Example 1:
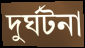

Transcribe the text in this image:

দুৰ্ঘটনা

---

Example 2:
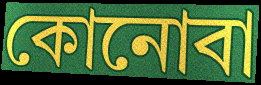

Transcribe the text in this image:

কোনোবা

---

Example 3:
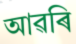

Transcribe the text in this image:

আৱৰি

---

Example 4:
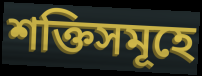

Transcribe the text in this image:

শক্তিসমূহে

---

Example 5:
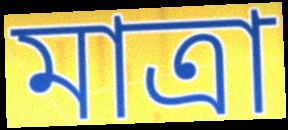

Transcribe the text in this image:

মাত্ৰা